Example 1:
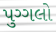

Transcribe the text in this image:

પુગ્ગલો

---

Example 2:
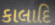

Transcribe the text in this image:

કાલાદિ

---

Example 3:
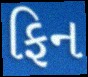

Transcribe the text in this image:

ફિન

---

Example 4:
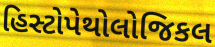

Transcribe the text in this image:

હિસ્ટોપેથોલોજિકલ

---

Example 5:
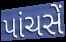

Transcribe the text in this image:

પાંચસેં